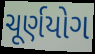
ચૂર્ણયોગ